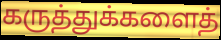
கருத்துக்களைத்